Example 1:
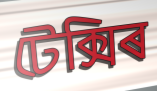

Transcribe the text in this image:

টেক্সিৰ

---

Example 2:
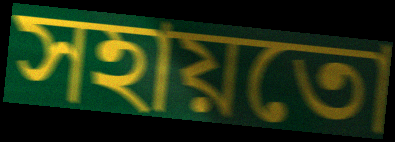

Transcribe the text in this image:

সহায়তো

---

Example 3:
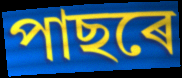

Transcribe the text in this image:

পাছৰে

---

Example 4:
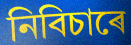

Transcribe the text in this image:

নিবিচাৰে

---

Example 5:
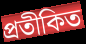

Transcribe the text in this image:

প্ৰতীকিত